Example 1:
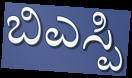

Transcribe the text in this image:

ಬಿಎಸ್ಪಿ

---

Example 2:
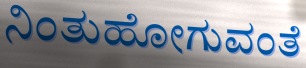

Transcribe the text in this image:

ನಿಂತುಹೋಗುವಂತೆ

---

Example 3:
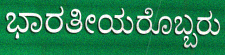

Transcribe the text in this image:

ಭಾರತೀಯರೊಬ್ಬರು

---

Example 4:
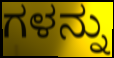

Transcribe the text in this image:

ಗಳನ್ನು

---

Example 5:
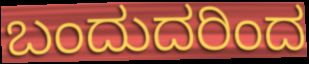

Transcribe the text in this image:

ಬಂದುದರಿಂದ